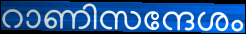
റാണിസന്ദേശം